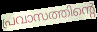
പ്രവാസത്തിന്റെ